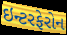
ઇન્ટરફેરોન